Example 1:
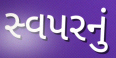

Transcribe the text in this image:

સ્વપરનું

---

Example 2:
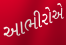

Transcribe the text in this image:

આભીરોએ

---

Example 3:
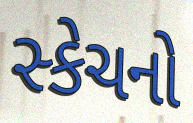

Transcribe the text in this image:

સ્કેચનો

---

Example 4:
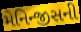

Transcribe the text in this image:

મેનિન્જીસની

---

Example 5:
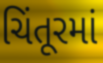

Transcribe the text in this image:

ચિંતૂરમાં